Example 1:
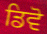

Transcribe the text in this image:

ਡਿਵੋ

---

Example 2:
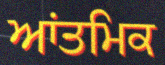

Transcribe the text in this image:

ਆਂਤਮਿਕ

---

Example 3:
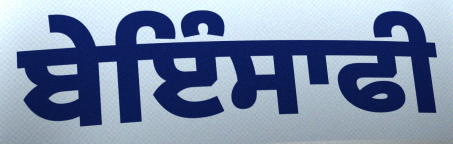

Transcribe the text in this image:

ਬੇਇੰਸਾਫੀ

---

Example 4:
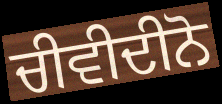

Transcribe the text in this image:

ਚੀਵੀਦੀਨੋ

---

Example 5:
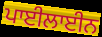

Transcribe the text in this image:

ਪਾਈਲਾਈਨ